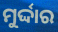
ମୁର୍ଦ୍ଦାର